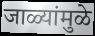
जाळ्यांमुळे